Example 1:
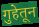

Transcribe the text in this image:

गुहेतून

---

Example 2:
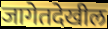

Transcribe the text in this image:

जागेतदेखील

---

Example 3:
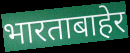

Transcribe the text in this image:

भारताबाहेर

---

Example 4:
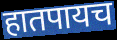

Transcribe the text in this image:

हातपायच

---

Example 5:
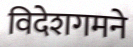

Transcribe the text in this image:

विदेशगमने